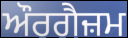
ਔਰਗੈਜ਼ਮ